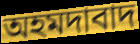
অহমদাবাদ